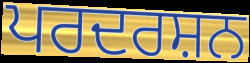
ਪਰਦਰਸ਼ਨ